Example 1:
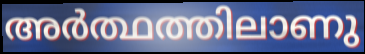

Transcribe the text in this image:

അർത്ഥത്തിലാണു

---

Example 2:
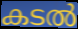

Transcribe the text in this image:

കടൽ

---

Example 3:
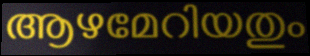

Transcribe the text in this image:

ആഴമേറിയതും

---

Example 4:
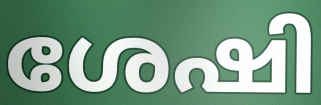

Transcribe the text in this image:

ശേഷി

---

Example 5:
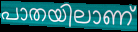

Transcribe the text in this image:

പാതയിലാണ്